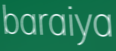
baraiya